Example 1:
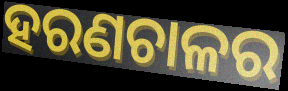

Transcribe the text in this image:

ହରଣଚାଳର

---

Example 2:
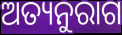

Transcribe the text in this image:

ଅତ୍ୟନୁରାଗ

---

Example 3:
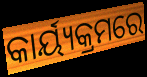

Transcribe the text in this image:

କାର୍ୟ୍ୟକ୍ରମରେ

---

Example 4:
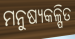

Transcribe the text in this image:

ମନୁଷ୍ୟକଳ୍ପିତ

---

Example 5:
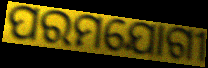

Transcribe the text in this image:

ପରମଯୋଗୀ